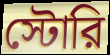
স্টোরি